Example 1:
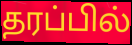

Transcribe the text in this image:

தரப்பில்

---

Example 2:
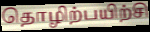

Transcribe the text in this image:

தொழிற்பயிற்சி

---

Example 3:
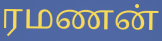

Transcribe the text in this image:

ரமணன்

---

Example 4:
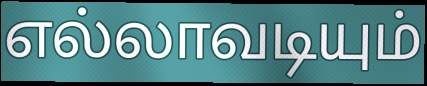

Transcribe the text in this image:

எல்லாவடியும்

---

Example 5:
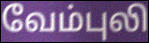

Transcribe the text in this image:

வேம்புலி